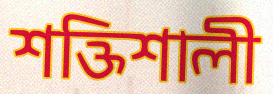
শক্তিশালী